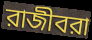
রাজীবরা